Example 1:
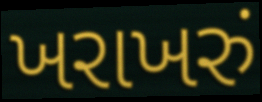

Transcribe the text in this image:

ખરાખરું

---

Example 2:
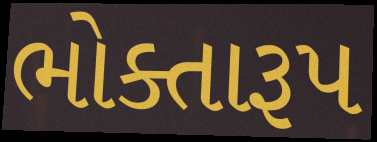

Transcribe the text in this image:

ભોક્તારૂપ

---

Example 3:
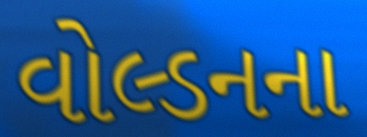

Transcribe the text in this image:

વોલ્ડનના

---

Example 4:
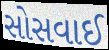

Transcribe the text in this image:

સોસવાઈ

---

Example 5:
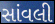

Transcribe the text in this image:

સાંવલી